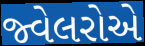
જ્વેલરોએ